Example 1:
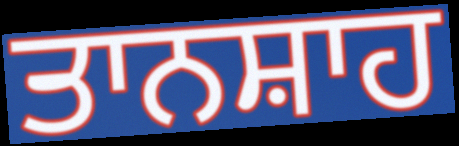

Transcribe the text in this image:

ਤਾਨਸ਼ਾਹ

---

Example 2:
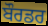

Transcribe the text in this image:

ਬੌਰਡਰ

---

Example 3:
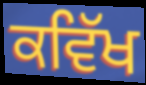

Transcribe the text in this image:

ਕਵਿੱਖ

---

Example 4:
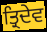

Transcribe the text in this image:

ਤ੍ਰਿਦੇਵ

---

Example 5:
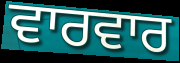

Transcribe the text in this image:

ਵਾਰਵਾਰ